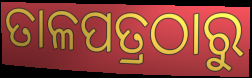
ତାଳପତ୍ରଠାରୁ